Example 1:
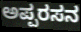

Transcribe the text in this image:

ಅಪ್ಪರಸನ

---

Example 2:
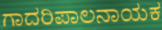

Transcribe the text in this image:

ಗಾದರಿಪಾಲನಾಯಕ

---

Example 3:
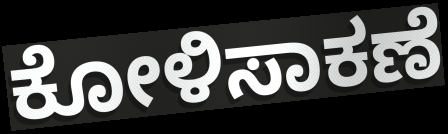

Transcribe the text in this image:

ಕೋಳಿಸಾಕಣೆ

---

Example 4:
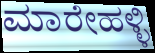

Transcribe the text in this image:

ಮಾರೇಹಳ್ಳಿ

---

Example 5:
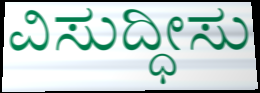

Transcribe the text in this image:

ವಿಸುದ್ಧೀಸು